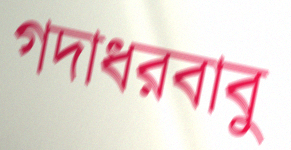
গদাধরবাবু